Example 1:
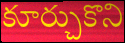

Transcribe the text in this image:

కూర్చుకొని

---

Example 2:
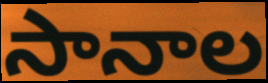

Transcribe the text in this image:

సానాల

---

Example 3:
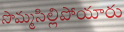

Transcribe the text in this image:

సొమ్మసిల్లిపోయారు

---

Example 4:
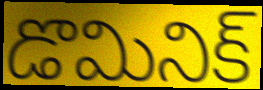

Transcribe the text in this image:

డొమినిక్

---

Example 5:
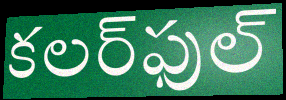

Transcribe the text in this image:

కలర్‌ఫుల్